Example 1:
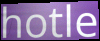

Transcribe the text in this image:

hotle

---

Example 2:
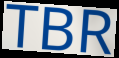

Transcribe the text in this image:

TBR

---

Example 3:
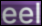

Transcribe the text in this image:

eel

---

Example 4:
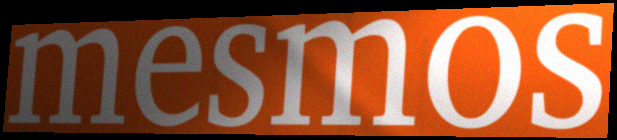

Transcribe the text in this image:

mesmos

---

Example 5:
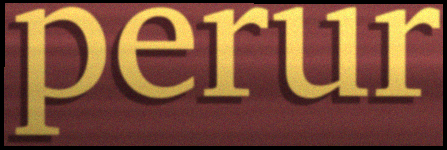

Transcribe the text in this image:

perur